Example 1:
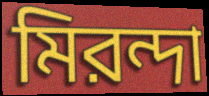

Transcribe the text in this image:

মিরন্দা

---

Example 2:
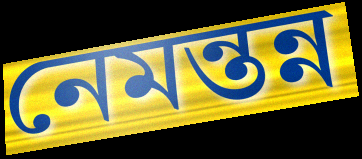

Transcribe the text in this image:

নেমন্তন্ন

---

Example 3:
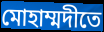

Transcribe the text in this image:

মোহাম্মদীতে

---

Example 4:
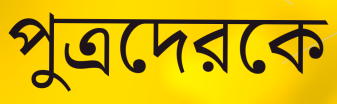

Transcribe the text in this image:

পুত্রদেরকে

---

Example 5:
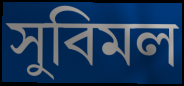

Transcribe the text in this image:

সুবিমল